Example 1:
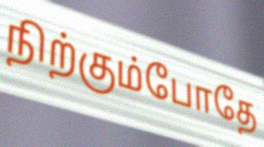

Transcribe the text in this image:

நிற்கும்போதே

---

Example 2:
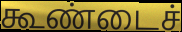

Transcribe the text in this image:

கூண்டைச்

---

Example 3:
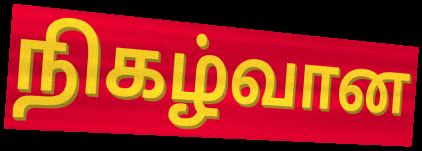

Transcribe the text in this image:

நிகழ்வான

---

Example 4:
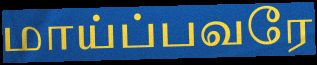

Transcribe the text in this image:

மாய்ப்பவரே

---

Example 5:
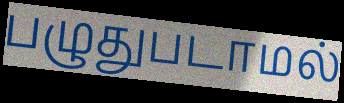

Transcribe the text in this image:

பழுதுபடாமல்